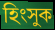
হিংসুক